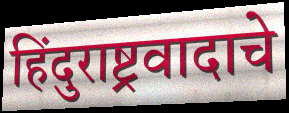
हिंदुराष्ट्रवादाचे